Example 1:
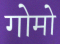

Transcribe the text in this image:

गोमो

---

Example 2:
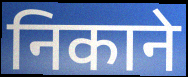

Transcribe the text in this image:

निकाने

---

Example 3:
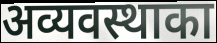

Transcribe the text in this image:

अव्यवस्थाका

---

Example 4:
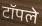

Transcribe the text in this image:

टॉपले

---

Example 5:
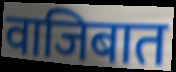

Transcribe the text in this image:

वाजिबात